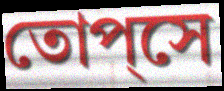
তোপ্‌সে